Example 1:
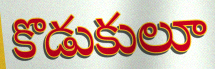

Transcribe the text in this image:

కొడుకులూ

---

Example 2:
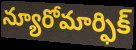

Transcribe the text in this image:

న్యూరోమార్ఫిక్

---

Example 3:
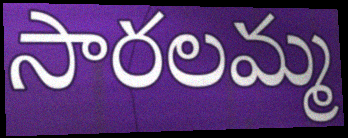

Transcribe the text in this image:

సారలమ్మ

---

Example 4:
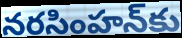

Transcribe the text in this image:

నరసింహన్‌కు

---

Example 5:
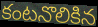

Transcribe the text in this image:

కంటనొలికిన